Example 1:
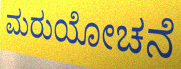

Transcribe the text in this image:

ಮರುಯೋಚನೆ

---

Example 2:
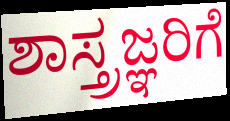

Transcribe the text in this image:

ಶಾಸ್ತ್ರಜ್ಞರಿಗೆ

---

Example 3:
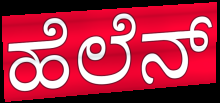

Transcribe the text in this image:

ಹೆಲೆನ್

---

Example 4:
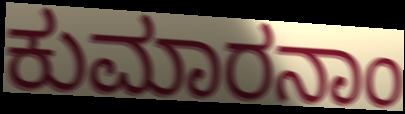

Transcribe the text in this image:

ಕುಮಾರನಾಂ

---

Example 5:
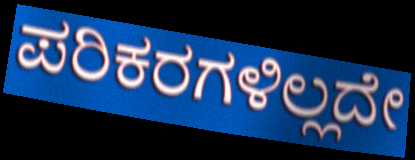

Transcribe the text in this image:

ಪರಿಕರಗಳಿಲ್ಲದೇ